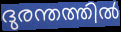
ദുരന്തത്തിൽ